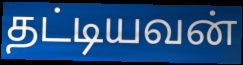
தட்டியவன்